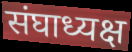
संघाध्यक्ष